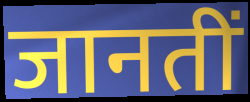
जानतीं